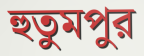
হুতুমপুর